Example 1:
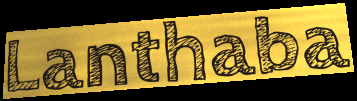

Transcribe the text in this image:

Lanthaba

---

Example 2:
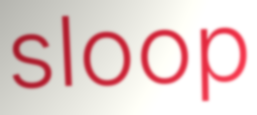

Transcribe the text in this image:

sloop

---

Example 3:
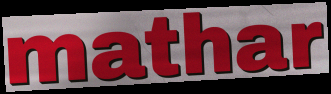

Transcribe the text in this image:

mathar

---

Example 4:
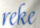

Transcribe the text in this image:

reke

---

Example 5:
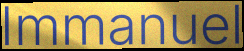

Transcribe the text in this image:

Immanuel